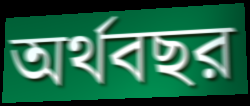
অর্থবছর